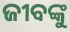
ଜୀବଙ୍କୁ